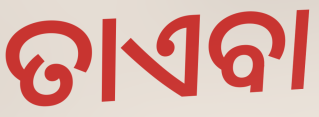
ତାଏବା